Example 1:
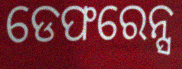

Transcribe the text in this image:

ଡେଫରେନ୍ସ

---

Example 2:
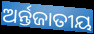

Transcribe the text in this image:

ଅର୍ନ୍ତଜାତୀୟ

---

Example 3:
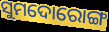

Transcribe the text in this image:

ସୁମଦୋରୋଙ୍ଗ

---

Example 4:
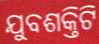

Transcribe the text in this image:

ଯୁବଶକ୍ତିଟି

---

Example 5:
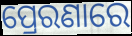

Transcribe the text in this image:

ପ୍ରେରଣାରେ